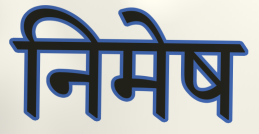
निमेष